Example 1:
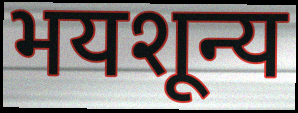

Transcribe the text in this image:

भयशून्य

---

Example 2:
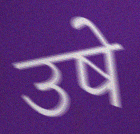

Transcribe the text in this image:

उषे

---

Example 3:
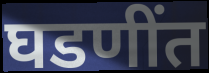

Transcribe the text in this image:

घडणींत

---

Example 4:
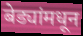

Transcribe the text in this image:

बेड्यांमधून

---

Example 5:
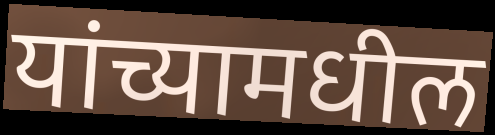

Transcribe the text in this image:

यांच्यामधील